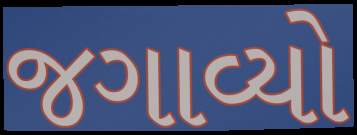
જગાવ્યો